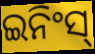
ଇନିଂସ୍